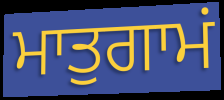
ਮਾਤੁਗਾਮਂ